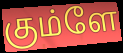
கும்ளே